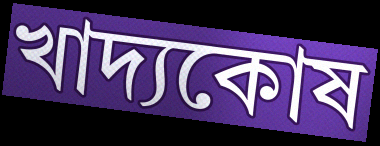
খাদ্যকোষ